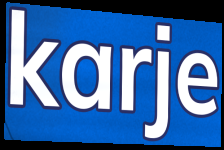
karje